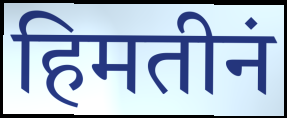
हिमतीनं